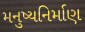
મનુષ્યનિર્માણ